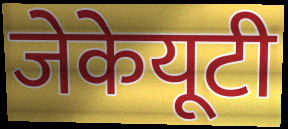
जेकेयूटी